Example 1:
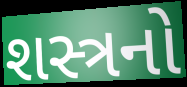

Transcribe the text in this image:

શસ્ત્રનો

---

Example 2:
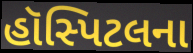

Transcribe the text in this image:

હૉસ્પિટલના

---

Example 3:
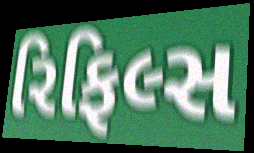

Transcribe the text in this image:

રિફિલ્સ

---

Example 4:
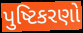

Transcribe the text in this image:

પુષ્ટિકરણો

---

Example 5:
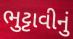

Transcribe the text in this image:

ભુટ્ટાવીનું